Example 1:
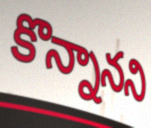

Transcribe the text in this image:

కొన్నానని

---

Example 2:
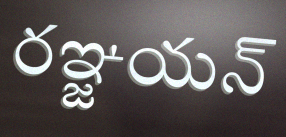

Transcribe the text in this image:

రఞ్జయన్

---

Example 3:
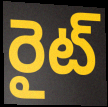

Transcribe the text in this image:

రైట్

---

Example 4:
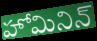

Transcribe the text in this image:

హోమినిన్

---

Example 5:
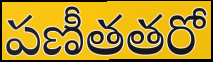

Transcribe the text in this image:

పణీతతరో